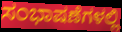
ಸಂಭಾಷಣೆಗಳಲ್ಲಿ